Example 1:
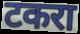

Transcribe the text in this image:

टकरा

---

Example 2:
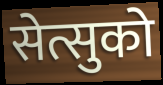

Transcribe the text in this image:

सेत्सुको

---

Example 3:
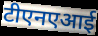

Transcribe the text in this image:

टीएनएआई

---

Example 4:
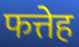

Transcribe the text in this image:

फत्तेह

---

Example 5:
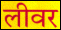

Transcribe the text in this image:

लीवर